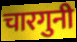
चारगुनी